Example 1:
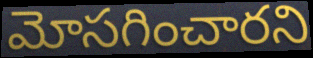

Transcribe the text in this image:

మోసగించారని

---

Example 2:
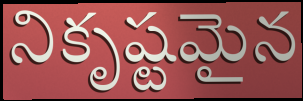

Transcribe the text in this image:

నికృష్టమైన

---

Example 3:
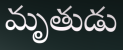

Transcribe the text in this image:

మృతుడు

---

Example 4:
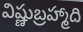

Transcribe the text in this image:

విష్ణుబ్రహ్మాది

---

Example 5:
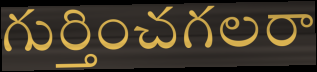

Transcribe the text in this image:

గుర్తించగలరా